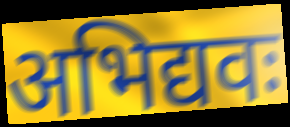
अभिद्यवः